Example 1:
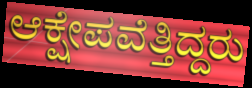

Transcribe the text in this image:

ಆಕ್ಷೇಪವೆತ್ತಿದ್ದರು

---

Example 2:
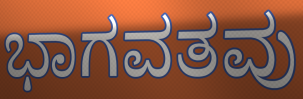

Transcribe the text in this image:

ಭಾಗವತವು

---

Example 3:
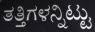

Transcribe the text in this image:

ತತ್ತಿಗಳನ್ನಿಟ್ಟು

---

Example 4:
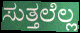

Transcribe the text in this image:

ಸುತ್ತಲೆಲ್ಲ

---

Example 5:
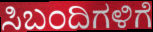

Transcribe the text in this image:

ಸಿಬಂದಿಗಳಿಗೆ